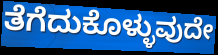
ತೆಗೆದುಕೊಳ್ಳುವುದೇ